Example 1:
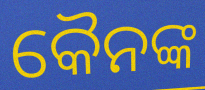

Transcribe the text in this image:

କୈନଙ୍କ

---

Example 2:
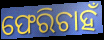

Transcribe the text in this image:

ଫେରିଚାହଁ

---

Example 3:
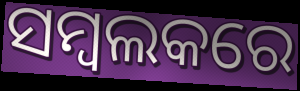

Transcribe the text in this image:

ସମ୍ବଲକରେ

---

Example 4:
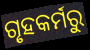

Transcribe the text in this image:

ଗୃହକର୍ମରୁ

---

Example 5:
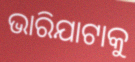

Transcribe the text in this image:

ଭାରିଯାଟାକୁ